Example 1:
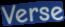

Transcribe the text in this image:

Verse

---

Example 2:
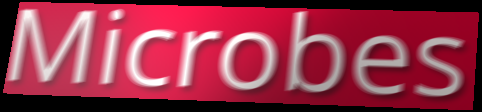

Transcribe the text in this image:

Microbes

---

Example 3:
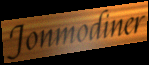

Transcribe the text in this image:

Jonmodiner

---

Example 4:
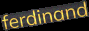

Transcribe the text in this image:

ferdinand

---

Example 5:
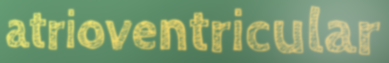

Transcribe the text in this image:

atrioventricular